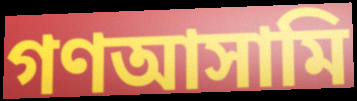
গণআসামি